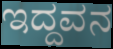
ಇದ್ದವನ